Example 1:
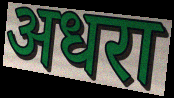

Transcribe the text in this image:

अधरा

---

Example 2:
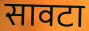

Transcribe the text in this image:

सावटा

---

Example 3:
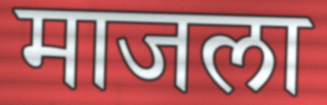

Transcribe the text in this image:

माजला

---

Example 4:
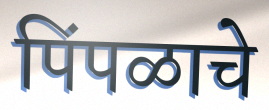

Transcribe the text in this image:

पिंपळाचे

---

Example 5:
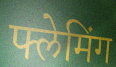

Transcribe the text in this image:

फ्लेमिंग